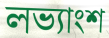
লভ্যাংশ